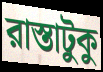
রাস্তাটুকু